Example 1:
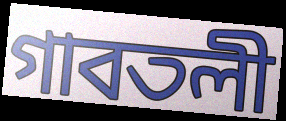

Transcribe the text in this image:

গাবতলী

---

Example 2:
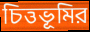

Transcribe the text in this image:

চিত্তভূমির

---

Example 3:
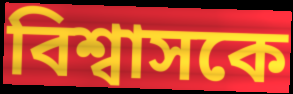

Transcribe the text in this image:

বিশ্বাসকে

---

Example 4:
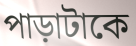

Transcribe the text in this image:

পাড়াটাকে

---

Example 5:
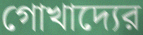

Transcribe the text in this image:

গোখাদ্যের